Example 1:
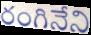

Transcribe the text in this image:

రంగినేని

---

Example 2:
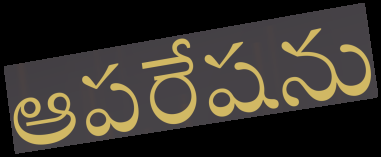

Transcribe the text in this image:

ఆపరేషను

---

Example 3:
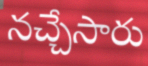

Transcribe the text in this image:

నచ్చేసారు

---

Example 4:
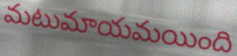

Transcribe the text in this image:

మటుమాయమయింది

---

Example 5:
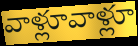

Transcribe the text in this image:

వాళ్లూవాళ్లూ